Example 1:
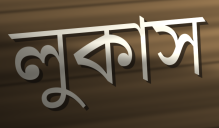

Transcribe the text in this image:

লুকাস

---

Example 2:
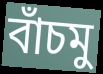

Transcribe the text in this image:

বাঁচমু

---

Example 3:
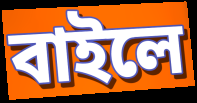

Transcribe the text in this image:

বাইলে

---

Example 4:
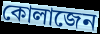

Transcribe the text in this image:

কোলাজেন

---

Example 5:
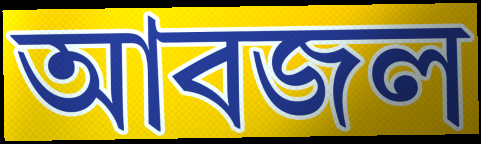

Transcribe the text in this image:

আবজল